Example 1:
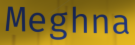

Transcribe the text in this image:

Meghna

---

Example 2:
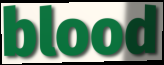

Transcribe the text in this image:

blood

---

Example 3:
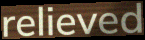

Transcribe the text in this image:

relieved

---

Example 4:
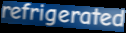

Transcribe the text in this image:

refrigerated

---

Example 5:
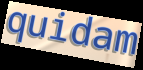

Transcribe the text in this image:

quidam